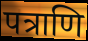
पत्राणि